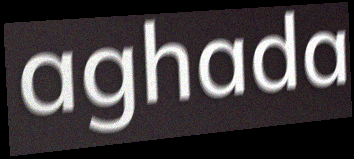
aghada